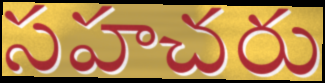
సహచరు